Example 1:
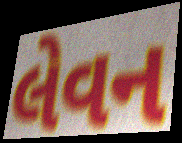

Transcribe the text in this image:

લેવન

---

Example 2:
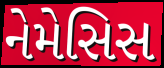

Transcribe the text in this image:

નેમેસિસ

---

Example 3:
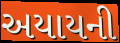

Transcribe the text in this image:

અયાયની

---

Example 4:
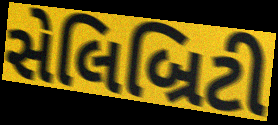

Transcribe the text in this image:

સેલિબ્રિટી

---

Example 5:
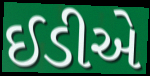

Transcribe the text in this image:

ઈડીએ